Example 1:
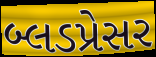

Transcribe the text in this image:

બ્લડપ્રેસર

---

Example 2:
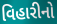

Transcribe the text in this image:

વિહારીનો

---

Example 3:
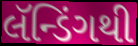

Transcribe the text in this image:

લૅન્ડિંગથી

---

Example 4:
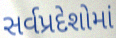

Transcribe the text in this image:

સર્વપ્રદેશોમાં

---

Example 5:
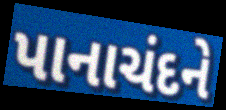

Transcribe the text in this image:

પાનાચંદને